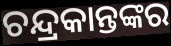
ଚନ୍ଦ୍ରକାନ୍ତଙ୍କର